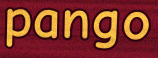
pango